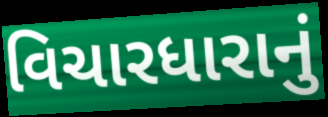
વિચારધારાનું